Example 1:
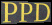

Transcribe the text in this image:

PPD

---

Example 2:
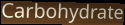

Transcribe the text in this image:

Carbohydrate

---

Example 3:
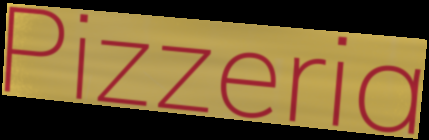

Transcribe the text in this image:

Pizzeria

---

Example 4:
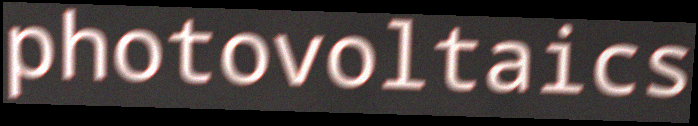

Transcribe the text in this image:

photovoltaics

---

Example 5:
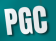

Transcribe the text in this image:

PGC